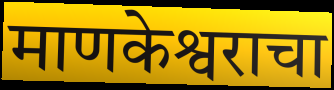
माणकेश्वराचा